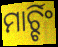
ମାର୍ଚ୍ଚିଂ